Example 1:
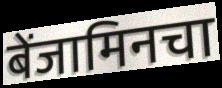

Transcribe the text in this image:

बेंजामिनचा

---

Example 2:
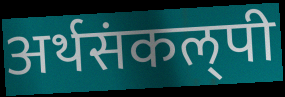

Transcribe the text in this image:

अर्थसंकल्पी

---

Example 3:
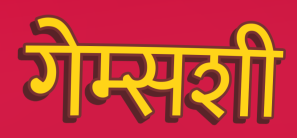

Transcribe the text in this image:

गेम्सशी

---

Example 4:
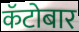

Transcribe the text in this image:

कॅटोबार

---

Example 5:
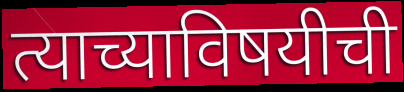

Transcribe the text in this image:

त्याच्याविषयीची